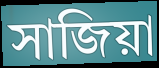
সাজিয়া